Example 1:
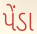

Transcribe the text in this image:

પેંડા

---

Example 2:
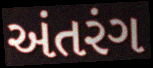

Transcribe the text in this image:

અંતરંગ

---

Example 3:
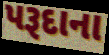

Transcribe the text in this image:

પરૂદાના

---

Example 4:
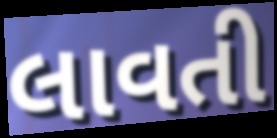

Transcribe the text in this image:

લાવતી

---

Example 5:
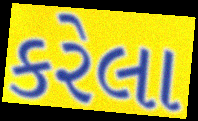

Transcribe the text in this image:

કરેલા